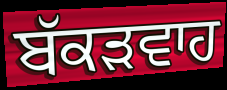
ਬੱਕੜਵਾਹ